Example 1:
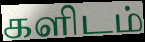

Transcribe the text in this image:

களிடம்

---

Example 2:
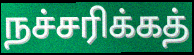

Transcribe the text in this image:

நச்சரிக்கத்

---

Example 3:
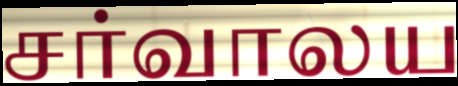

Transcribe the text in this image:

சர்வாலய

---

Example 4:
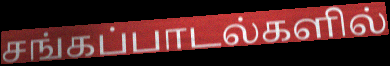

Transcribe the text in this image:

சங்கப்பாடல்களில்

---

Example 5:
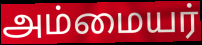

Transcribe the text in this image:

அம்மையர்